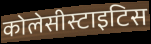
कोलेसीस्टाइटिस